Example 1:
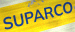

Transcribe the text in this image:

SUPARCO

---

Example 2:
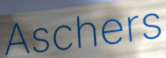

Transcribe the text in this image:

Aschers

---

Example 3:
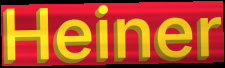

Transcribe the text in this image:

Heiner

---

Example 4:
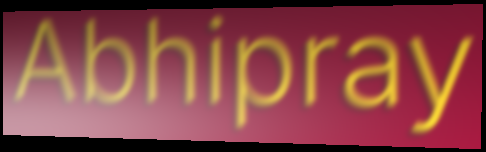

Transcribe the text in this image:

Abhipray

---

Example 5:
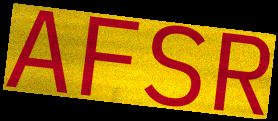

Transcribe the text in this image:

AFSR